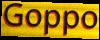
Goppo